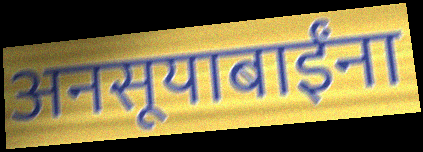
अनसूयाबाईंना